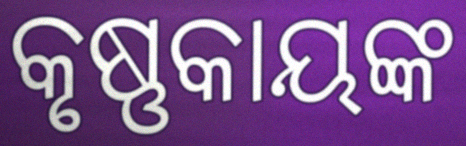
କୃଷ୍ଣକାୟଙ୍କ